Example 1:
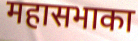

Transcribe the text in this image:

महासभाका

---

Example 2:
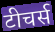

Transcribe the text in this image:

टीचर्स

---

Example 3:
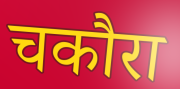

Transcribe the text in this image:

चकौरा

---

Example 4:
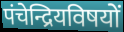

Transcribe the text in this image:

पंचेन्द्रियविषयों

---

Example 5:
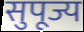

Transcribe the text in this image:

सुपूज्य